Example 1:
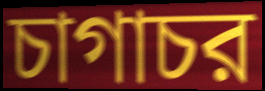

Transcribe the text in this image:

চাগাচর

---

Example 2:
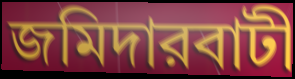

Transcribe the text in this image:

জমিদারবাটী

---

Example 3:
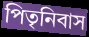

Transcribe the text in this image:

পিতৃনিবাস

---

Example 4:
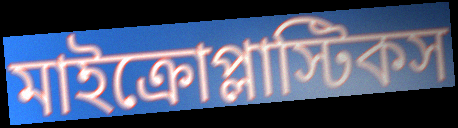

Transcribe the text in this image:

মাইক্রোপ্লাস্টিকস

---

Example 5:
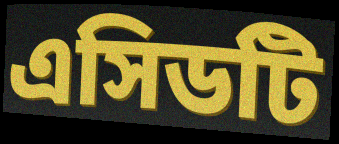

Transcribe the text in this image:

এসিডটি